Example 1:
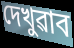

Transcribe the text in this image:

দেখুৱাব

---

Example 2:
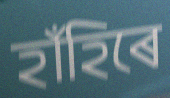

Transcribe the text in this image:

হাঁহিৰে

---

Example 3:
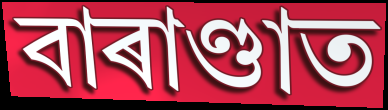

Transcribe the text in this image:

বাৰাণ্ডাত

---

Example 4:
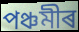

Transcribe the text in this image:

পঞ্চমীৰ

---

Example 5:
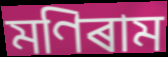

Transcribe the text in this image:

মণিৰাম